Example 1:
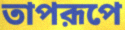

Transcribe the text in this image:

তাপরূপে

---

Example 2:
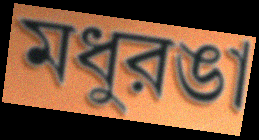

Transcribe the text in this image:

মধুরঙা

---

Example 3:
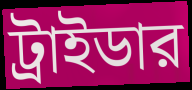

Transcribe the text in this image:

ট্রাইডার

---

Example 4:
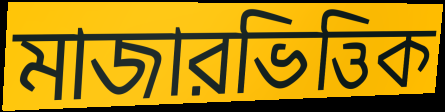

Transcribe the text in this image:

মাজারভিত্তিক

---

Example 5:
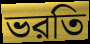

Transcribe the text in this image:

ভরতি